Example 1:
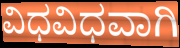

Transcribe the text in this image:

ವಿಧವಿಧವಾಗಿ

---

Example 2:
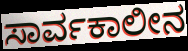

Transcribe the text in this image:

ಸಾರ್ವಕಾಲೀನ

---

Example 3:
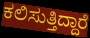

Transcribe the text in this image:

ಕಲಿಸುತ್ತಿದ್ದಾರೆ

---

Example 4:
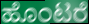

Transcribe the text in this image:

ಹೊಂಟರೆ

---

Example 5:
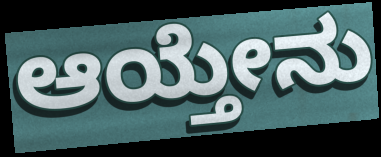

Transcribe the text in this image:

ಆಯ್ತೇನು